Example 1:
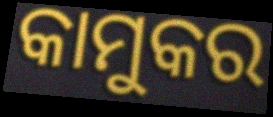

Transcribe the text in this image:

କାମୁକର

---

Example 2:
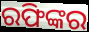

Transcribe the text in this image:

ରଫିଙ୍କର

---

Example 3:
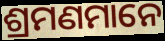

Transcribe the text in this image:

ଶ୍ରମଣମାନେ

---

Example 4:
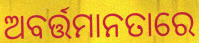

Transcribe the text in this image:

ଅବର୍ତ୍ତମାନତାରେ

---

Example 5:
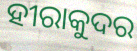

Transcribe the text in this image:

ହୀରାକୁଦର